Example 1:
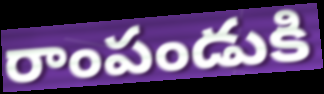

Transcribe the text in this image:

రాంపండుకి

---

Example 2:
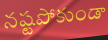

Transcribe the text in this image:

నష్టపోకుండా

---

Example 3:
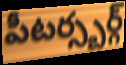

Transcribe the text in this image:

పీటర్స్బర్గ్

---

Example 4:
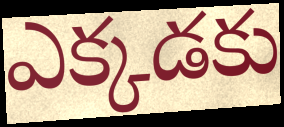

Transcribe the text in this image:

ఎక్కడకు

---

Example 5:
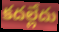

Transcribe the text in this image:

కదల్లేదు